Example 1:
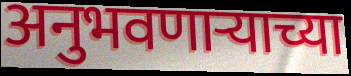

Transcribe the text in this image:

अनुभवणार्‍याच्या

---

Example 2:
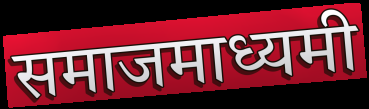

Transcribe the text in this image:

समाजमाध्यमी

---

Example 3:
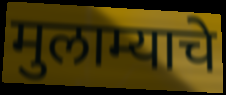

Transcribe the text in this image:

मुलाम्याचे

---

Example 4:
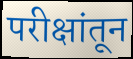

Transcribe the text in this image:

परीक्षांतून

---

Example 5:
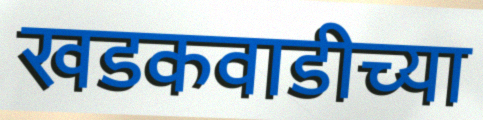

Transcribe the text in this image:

खडकवाडीच्या